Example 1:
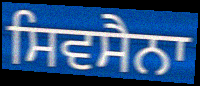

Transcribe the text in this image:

ਸਿਵਸੈਨਾ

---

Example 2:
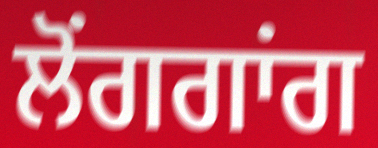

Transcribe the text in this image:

ਲੋਂਗਗਾਂਗ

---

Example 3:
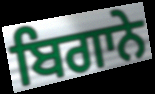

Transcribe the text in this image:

ਬਿਗਾਨੇ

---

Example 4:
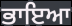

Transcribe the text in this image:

ਭਾਇਆ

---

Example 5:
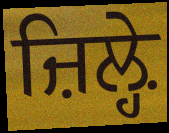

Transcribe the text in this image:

ਜ਼ਿਲ਼੍ਹੇ